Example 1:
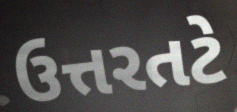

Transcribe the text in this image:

ઉત્તરતટે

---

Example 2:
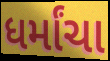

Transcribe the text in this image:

ધર્માંચા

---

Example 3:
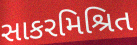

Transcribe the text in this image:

સાકરમિશ્રિત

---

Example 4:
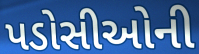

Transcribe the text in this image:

પડોસીઓની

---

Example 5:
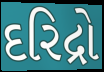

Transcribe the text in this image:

દરિદ્રો